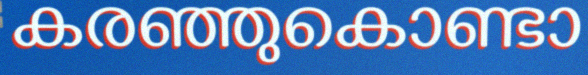
കരഞ്ഞുകൊണ്ടാ